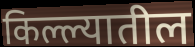
किल्ल्यातील